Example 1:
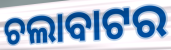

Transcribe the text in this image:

ଚଲାବାଟର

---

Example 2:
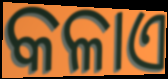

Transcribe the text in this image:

କଳାଏ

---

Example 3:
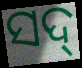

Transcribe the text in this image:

ସଦ୍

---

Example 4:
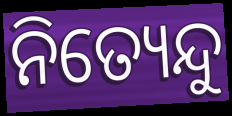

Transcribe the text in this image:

ନିତ୍ୟେନ୍ଦୁ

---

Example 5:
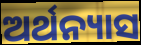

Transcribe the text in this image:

ଅର୍ଥନ୍ୟାସ